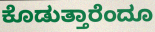
ಕೊಡುತ್ತಾರೆಂದೂ